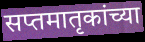
सप्तमातृकांच्या